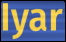
Iyar